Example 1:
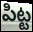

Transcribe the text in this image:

పిట్ట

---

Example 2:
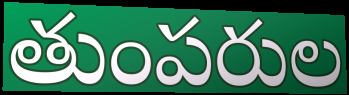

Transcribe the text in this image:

తుంపరుల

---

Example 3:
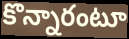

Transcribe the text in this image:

కొన్నారంటూ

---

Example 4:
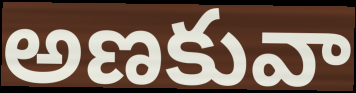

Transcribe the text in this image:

అణకువా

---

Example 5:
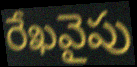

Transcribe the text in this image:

రేఖవైపు